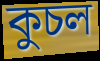
কুচল